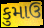
કુમાઉ